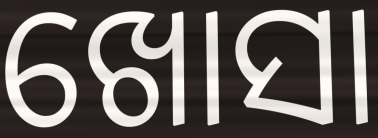
ଖୋସା